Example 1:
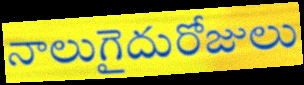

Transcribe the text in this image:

నాలుగైదురోజులు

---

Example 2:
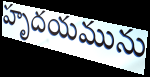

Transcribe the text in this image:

హృదయమును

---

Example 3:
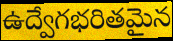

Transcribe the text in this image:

ఉద్వేగభరితమైన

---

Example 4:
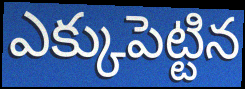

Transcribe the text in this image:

ఎక్కుపెట్టిన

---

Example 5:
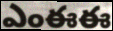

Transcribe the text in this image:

ఎంఈఈ